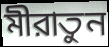
মীরাতুন